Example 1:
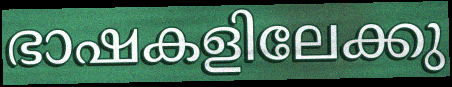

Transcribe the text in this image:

ഭാഷകളിലേക്കു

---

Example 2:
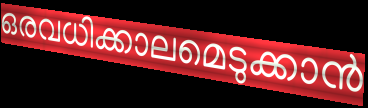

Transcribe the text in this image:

ഒരവധിക്കാലമെടുക്കാൻ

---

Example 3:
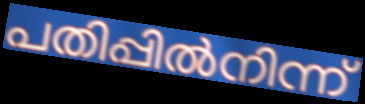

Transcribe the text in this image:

പതിപ്പിൽനിന്ന്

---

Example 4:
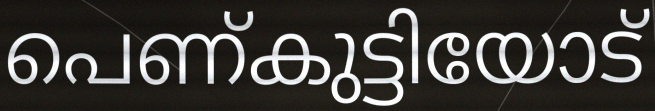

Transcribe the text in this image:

പെണ്കുട്ടിയോട്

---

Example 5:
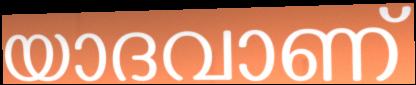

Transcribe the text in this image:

യാദവാണ്